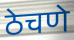
ठेचणे